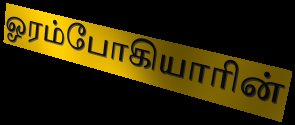
ஓரம்போகியாரின்